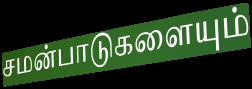
சமன்பாடுகளையும்